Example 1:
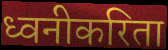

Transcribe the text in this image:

ध्वनीकरिता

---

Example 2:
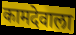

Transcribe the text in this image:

कामदेवाला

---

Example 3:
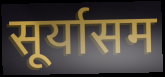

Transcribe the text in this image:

सूर्यासम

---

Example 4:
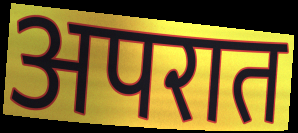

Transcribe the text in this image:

अपरात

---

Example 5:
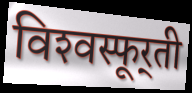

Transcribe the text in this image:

विश्वस्फूर्ती